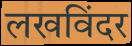
लखविंदर